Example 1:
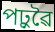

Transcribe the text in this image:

পঢ়ুৱৈ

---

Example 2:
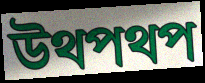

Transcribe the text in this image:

উথপথপ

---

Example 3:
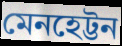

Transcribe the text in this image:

মেনহেট্টন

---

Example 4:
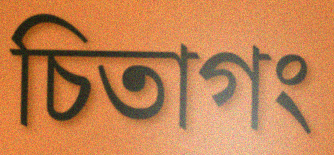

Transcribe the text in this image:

চিতাগং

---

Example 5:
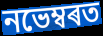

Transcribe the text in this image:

নভেম্বৰত